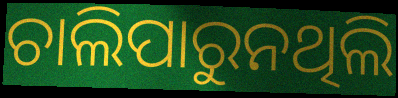
ଚାଲିପାରୁନଥିଲି